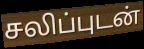
சலிப்புடன்